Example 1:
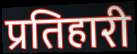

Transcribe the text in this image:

प्रतिहारी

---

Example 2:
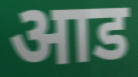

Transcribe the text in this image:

आड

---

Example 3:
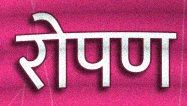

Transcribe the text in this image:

रोपण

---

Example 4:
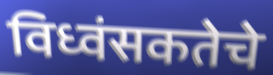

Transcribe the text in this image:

विध्वंसकतेचे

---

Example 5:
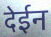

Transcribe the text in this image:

देईन